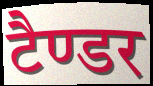
टैण्डर